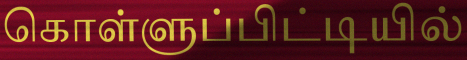
கொள்ளுப்பிட்டியில்